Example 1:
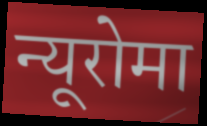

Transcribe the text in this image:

न्यूरोमा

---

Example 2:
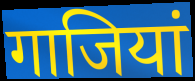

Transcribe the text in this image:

गाजियां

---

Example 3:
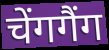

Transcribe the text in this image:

चेंगगैंग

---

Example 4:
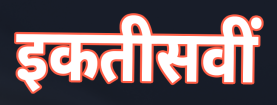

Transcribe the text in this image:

इकतीसवीं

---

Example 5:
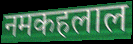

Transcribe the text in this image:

नमकहलाल